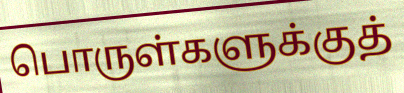
பொருள்களுக்குத்